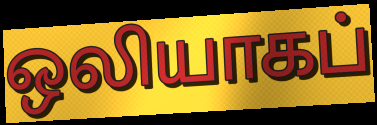
ஒலியாகப்